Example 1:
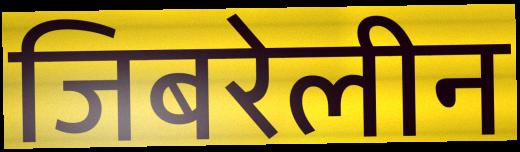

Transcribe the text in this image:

जिबरेलीन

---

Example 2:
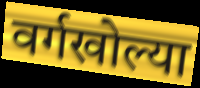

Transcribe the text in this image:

वर्गखोल्या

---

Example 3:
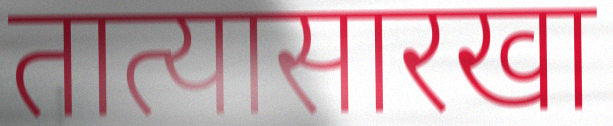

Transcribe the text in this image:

तात्यासारखा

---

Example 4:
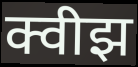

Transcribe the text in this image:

क्वीझ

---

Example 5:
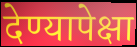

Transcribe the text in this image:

देण्यापेक्षा